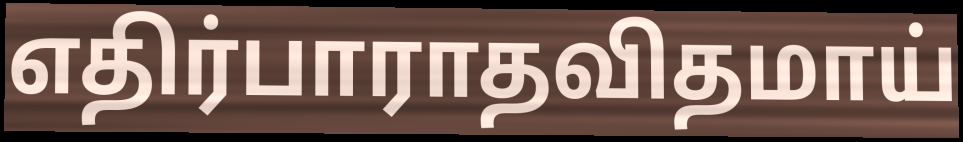
எதிர்பாராதவிதமாய்